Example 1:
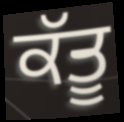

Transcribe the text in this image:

ਕੱਤੂ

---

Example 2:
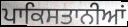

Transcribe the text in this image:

ਪਾਕਿਸਤਾਨੀਆਂ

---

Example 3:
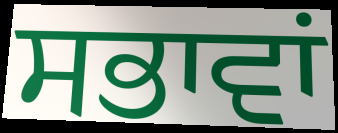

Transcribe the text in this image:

ਸਭਾਵਾਂ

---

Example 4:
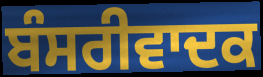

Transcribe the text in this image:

ਬੰਸਰੀਵਾਦਕ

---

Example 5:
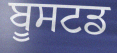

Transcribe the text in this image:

ਬੂਸਟਡ